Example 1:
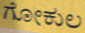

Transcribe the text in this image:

ಗೋಕುಲ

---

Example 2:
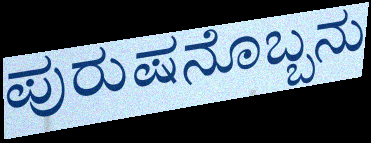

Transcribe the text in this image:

ಪುರುಷನೊಬ್ಬನು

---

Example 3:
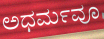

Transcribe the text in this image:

ಅಧರ್ಮವೂ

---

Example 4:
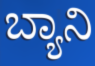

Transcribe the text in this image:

ಬ್ಯಾನಿ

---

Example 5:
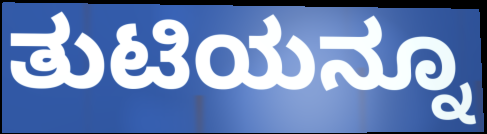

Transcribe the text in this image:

ತುಟಿಯನ್ನೂ